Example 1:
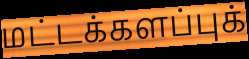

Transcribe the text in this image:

மட்டக்களப்புக்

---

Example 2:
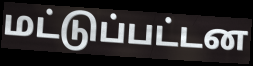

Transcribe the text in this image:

மட்டுப்பட்டன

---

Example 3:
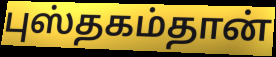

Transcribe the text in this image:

புஸ்தகம்தான்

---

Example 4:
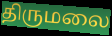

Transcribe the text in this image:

திருமலை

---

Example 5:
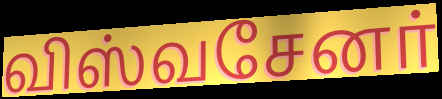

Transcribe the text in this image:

விஸ்வசேனர்